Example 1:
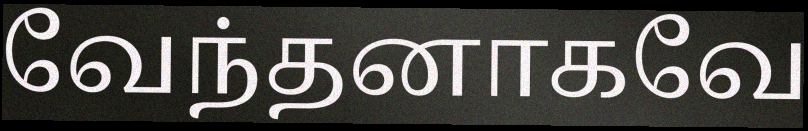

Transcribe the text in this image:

வேந்தனாகவே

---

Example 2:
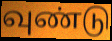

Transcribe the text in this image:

வுண்டு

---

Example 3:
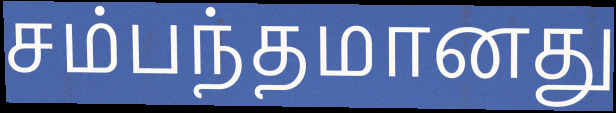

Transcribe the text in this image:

சம்பந்தமானது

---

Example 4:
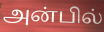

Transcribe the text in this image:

அன்பில்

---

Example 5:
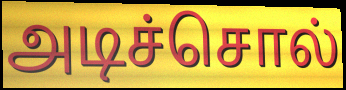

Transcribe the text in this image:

அடிச்சொல்